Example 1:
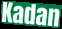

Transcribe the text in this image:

Kadan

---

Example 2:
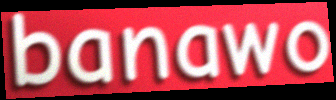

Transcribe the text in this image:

banawo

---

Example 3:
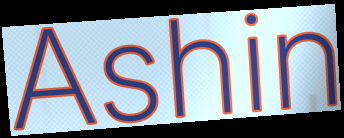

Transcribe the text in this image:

Ashin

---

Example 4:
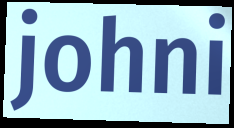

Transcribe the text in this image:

johni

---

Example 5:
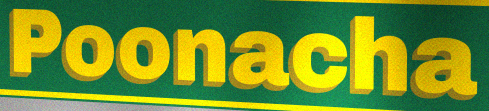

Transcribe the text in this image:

Poonacha